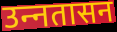
उन्नतासन